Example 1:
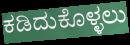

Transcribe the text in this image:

ಕಡಿದುಕೊಳ್ಳಲು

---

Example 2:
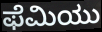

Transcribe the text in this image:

ಫೆಮಿಯು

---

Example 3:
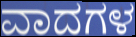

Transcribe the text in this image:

ವಾದಗಳ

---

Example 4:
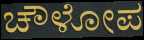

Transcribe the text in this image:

ಚೌಳೋಪ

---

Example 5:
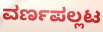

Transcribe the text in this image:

ವರ್ಣಪಲ್ಲಟ